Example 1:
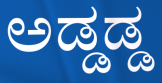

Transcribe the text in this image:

ಅಡ್ಡಡ್ಡ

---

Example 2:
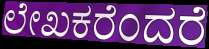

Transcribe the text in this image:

ಲೇಖಕರೆಂದರೆ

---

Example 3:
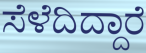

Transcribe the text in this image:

ಸೆಳೆದಿದ್ದಾರೆ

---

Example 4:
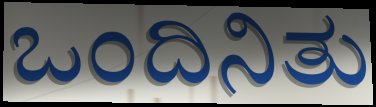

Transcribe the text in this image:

ಒಂದಿನಿತು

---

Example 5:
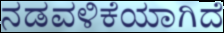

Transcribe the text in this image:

ನಡವಳಿಕೆಯಾಗಿದೆ